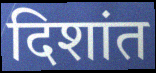
दिशांत